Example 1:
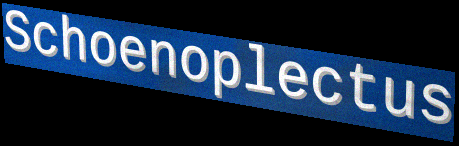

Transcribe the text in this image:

Schoenoplectus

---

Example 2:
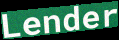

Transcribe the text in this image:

Lender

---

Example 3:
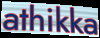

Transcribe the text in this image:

athikka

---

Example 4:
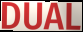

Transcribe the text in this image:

DUAL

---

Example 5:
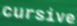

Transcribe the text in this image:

cursive